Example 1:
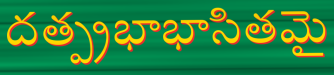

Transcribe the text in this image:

దత్ప్రభాభాసితమై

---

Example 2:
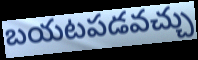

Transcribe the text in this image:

బయటపడవచ్చు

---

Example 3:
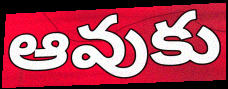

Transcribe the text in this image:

ఆవుకు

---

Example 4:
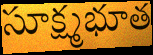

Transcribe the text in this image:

సూక్ష్మభూత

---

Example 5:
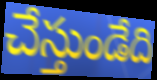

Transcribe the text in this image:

చేస్తుండేది